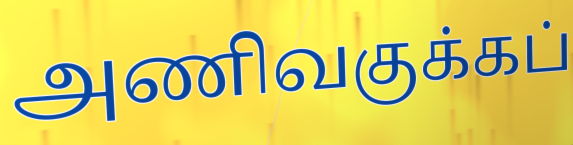
அணிவகுக்கப்